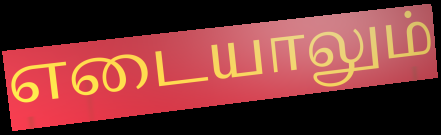
எடையாலும்